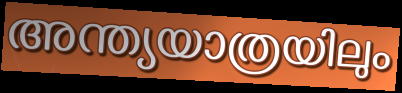
അന്ത്യയാത്രയിലും